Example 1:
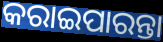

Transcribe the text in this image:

କରାଇପାରନ୍ତା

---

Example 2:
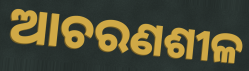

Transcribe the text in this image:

ଆଚରଣଶୀଳ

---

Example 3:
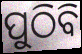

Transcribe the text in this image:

ପୁଠିବି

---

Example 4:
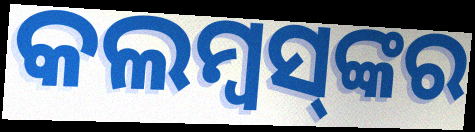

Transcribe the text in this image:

କଲମ୍ୱସ୍‌ଙ୍କର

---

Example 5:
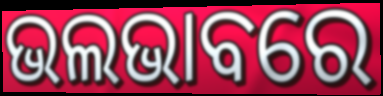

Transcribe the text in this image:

ଭଲଭାବରେ